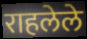
राहलेले